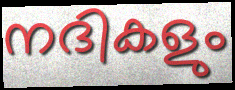
നദികളും